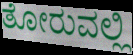
ತೋರುವಲ್ಲಿ